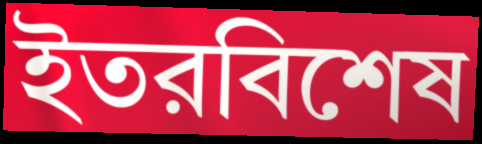
ইতরবিশেষ